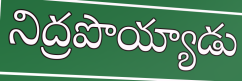
నిద్రపొయ్యాడు